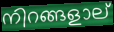
നിറങ്ങളാല്